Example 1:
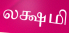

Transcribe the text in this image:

லக்ஷமி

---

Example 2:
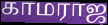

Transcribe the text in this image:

காமராஜ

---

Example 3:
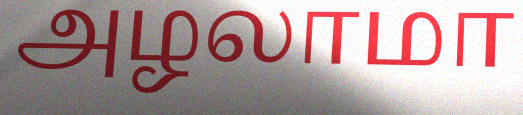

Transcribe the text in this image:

அழலாமா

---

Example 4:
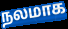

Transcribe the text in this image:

நலமாக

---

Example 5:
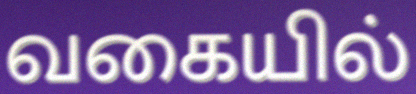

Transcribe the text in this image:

வகையில்